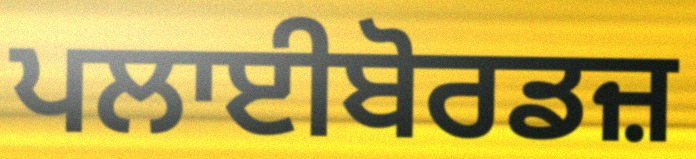
ਪਲਾਈਬੋਰਡਜ਼